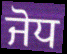
ਜੋਧ